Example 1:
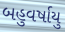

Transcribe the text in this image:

બહુવર્ષાયુ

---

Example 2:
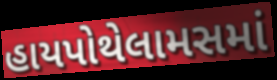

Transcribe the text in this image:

હાયપોથેલામસમાં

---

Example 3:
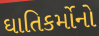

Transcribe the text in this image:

ઘાતિકર્મોનો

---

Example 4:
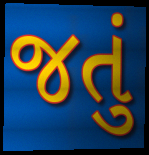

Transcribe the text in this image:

જતું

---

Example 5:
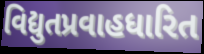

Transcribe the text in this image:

વિદ્યુતપ્રવાહધારિત